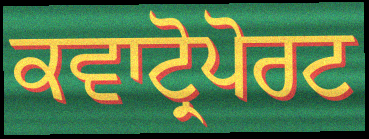
ਕਵਾਟ੍ਰੋਪੋਰਟ